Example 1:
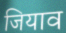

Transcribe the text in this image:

जियाव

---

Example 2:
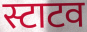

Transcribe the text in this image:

स्टाटव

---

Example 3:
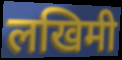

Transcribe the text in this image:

लखिमी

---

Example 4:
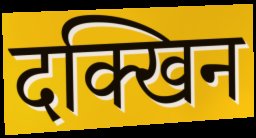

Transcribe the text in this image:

दक्खिन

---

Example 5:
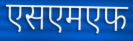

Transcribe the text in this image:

एसएमएफ